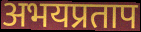
अभयप्रताप